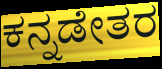
ಕನ್ನಡೇತರ